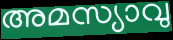
അമസ്യാവു